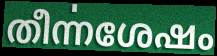
തീൎന്നശേഷം